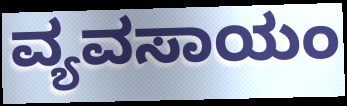
ವ್ಯವಸಾಯಂ